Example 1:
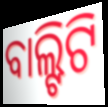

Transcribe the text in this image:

ବାଲ୍ଟିଟି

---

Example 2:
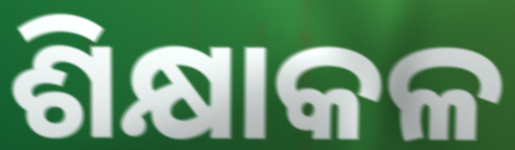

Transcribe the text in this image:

ଶିକ୍ଷାକଳ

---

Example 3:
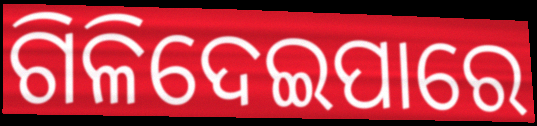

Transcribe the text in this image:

ଗିଳିଦେଇପାରେ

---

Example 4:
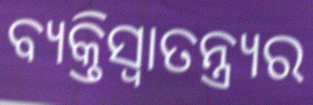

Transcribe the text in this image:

ବ୍ୟକ୍ତିସ୍ୱାତନ୍ତ୍ର୍ୟର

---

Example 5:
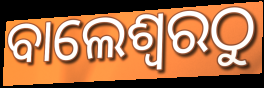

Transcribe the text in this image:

ବାଲେଶ୍ୱରଠୁ